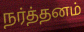
நர்த்தனம்